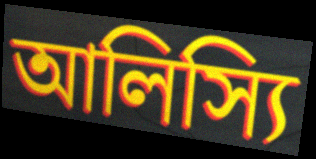
আলিস্যি